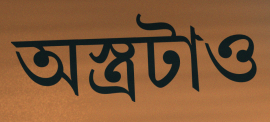
অস্ত্রটাও